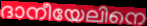
ദാനീയേലിനെ